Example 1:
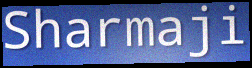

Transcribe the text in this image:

Sharmaji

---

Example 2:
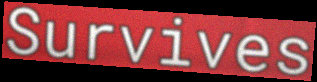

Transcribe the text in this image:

Survives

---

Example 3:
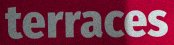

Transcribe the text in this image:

terraces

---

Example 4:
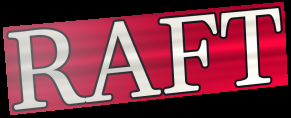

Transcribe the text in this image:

RAFT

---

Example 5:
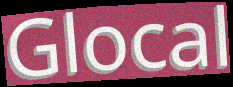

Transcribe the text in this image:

Glocal